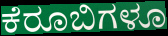
ಕೆರೂಬಿಗಳೂ